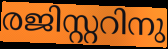
രജിസ്റ്ററിനു